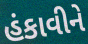
હંકાવીને